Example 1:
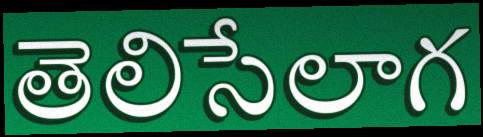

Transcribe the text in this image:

తెలిసేలాగ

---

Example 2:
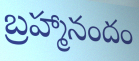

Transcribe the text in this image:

బ్రహ్మానందం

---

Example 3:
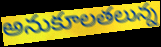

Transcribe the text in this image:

అనుకూలతలున్న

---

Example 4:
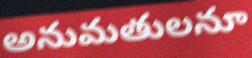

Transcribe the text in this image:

అనుమతులనూ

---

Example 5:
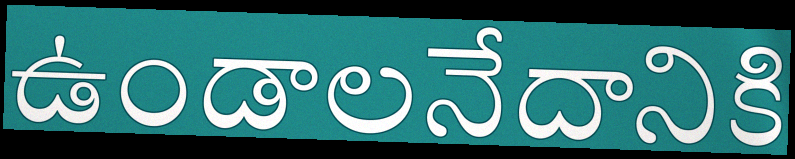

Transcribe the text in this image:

ఉండాలనేదానికి